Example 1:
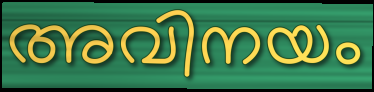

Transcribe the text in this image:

അവിനയം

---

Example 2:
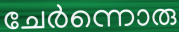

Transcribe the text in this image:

ചേർന്നൊരു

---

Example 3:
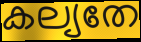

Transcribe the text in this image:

കല്യതേ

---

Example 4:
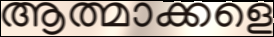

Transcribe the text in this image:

ആത്മാക്കളെ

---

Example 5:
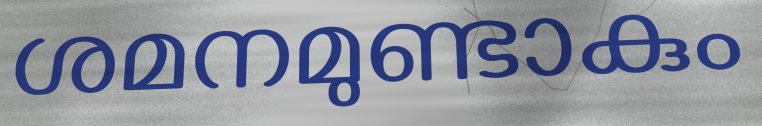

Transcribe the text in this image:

ശമനമുണ്ടാകും